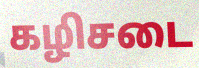
கழிசடை